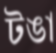
টঙা